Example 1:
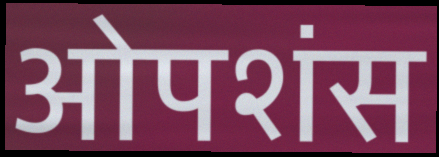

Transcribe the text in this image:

ओपशंस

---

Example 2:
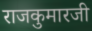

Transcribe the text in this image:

राजकुमारजी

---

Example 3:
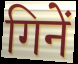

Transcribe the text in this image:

गिनें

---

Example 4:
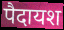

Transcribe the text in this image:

पैदायश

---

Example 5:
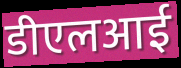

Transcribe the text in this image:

डीएलआई